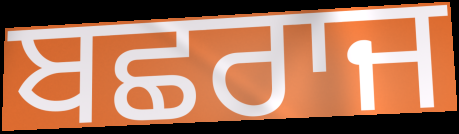
ਬਛਰਾਜ